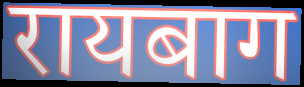
रायबाग